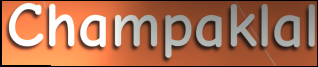
Champaklal